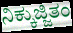
ನಿಕ್ಕುಜ್ಜಿತಂ